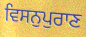
ਵਿਸਨੁਪੁਰਾਣ